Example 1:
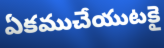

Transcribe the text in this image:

ఏకముచేయుటకై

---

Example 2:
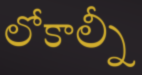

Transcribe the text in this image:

లోకాల్నీ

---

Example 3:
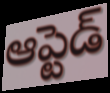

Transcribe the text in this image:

ఆప్టెడ్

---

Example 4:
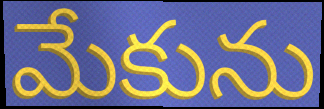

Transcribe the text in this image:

మేకును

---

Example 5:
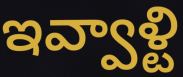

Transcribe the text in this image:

ఇవ్వాళ్టి